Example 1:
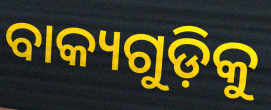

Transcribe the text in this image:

ବାକ୍ୟଗୁଡ଼ିକୁ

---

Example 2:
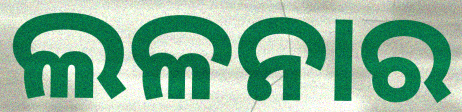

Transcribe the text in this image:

ଲଳନାର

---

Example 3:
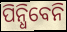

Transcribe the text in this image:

ପିନ୍ଧିବେନି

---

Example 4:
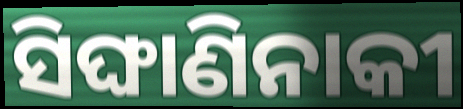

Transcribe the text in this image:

ସିଙ୍ଘାଣିନାକୀ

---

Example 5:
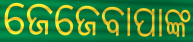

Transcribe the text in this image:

ଜେଜେବାପାଙ୍କ